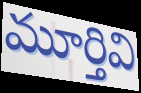
మూర్తివి